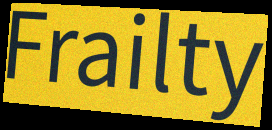
Frailty